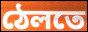
ঠেলতে